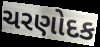
ચરણોદક